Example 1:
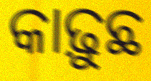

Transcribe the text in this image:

କାଢ଼ୁଛ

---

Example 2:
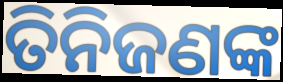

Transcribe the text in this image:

ତିନିଜଣଙ୍କ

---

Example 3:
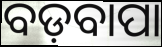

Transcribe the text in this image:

ବଡ଼ବାପା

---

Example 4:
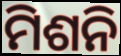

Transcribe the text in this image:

ମିଶନି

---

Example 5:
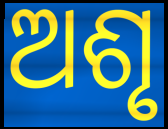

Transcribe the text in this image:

ଅଶୃ